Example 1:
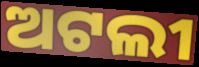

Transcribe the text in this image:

ଅଟଲୀ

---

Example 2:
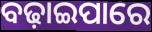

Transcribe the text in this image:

ବଢ଼ାଇପାରେ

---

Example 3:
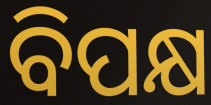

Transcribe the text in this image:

ବିପକ୍ଷ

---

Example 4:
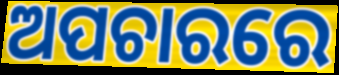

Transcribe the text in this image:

ଅପଚାରରେ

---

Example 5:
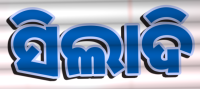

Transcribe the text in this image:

ସିଲାଦି